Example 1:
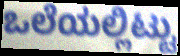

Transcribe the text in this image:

ಒಲೆಯಲ್ಲಿಟ್ಟು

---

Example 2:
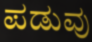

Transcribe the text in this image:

ಪಡುವು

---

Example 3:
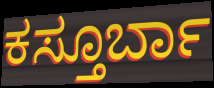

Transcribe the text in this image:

ಕಸ್ತೂರ್ಬಾ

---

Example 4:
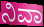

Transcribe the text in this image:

ನಿವಾ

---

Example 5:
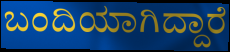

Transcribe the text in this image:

ಬಂದಿಯಾಗಿದ್ದಾರೆ